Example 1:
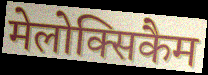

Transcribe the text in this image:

मेलोक्सिकैम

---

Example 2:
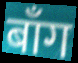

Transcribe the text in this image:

बाँग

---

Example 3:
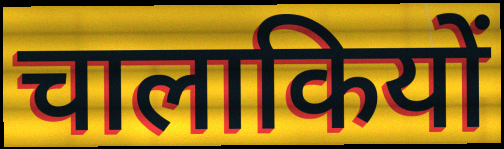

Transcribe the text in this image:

चालाकियों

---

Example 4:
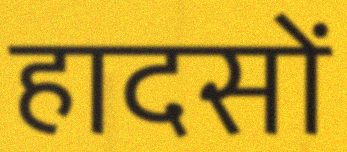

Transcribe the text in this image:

हादसों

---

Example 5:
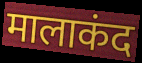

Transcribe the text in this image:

मालाकंद